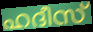
ഹദീസ്